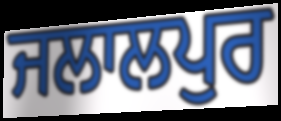
ਜਲਾਲਪੁਰ